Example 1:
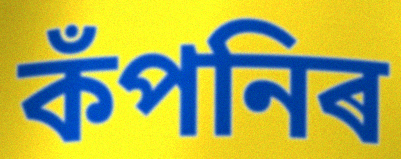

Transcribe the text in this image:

কঁপনিৰ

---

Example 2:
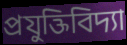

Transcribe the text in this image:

প্ৰযুক্তিবিদ্যা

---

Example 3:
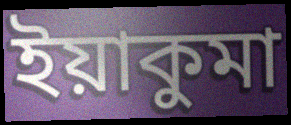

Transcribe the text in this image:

ইয়াকুমা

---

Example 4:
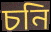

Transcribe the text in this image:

চনি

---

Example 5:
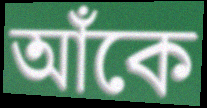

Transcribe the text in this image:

আঁকে